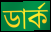
ডাৰ্ক